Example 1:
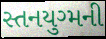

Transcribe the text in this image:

સ્તનયુગ્મની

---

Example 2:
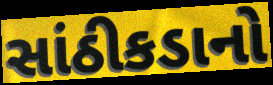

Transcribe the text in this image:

સાંઠીકડાનો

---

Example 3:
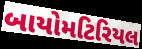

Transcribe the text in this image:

બાયોમટિરિયલ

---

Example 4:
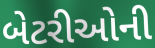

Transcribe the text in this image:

બેટરીઓની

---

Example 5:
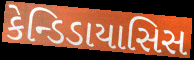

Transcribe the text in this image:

કેન્ડિડાયાસિસ